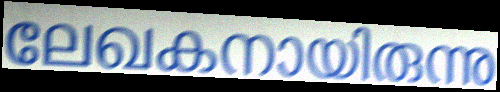
ലേഖകനായിരുന്നു